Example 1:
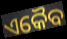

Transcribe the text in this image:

ଏକୈବ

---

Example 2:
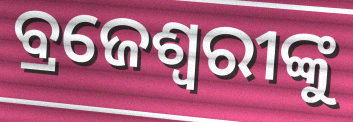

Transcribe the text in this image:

ବ୍ରଜେଶ୍ୱରୀଙ୍କୁ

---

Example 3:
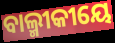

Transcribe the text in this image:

ବାଲ୍ମୀକୀୟେ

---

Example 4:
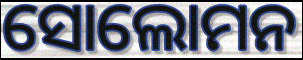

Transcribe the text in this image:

ସୋଲୋମନ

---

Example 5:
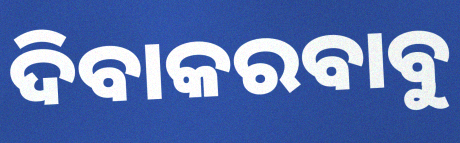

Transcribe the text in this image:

ଦିବାକରବାବୁ